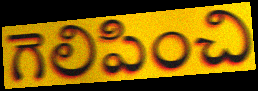
గెలిపించి